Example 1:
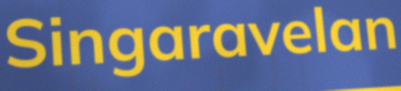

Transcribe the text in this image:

Singaravelan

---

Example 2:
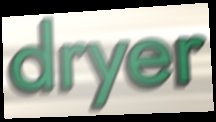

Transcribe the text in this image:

dryer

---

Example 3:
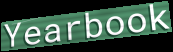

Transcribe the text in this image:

Yearbook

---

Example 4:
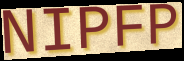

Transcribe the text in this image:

NIPFP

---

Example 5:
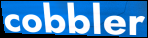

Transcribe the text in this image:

cobbler